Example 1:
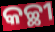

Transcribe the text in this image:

କଚ୍ଛୀ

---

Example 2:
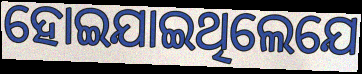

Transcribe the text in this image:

ହୋଇଯାଇଥିଲେଯେ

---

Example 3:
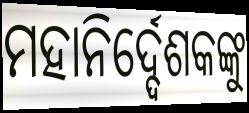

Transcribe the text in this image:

ମହାନିର୍ଦ୍ଦେଶକଙ୍କୁ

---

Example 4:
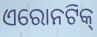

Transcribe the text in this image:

ଏରୋନଟିକ୍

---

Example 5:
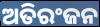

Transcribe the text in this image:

ଅତିରଂଜନ